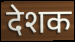
देशक